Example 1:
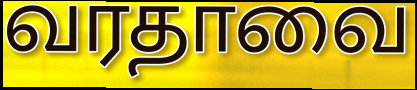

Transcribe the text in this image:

வரதாவை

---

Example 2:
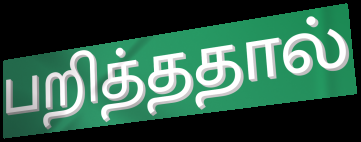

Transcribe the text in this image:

பறித்ததால்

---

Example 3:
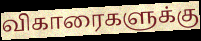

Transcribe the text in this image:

விகாரைகளுக்கு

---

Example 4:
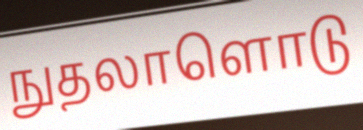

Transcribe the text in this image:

நுதலாளொடு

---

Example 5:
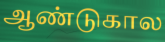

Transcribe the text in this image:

ஆண்டுகால